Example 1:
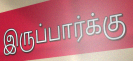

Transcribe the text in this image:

இருப்பார்க்கு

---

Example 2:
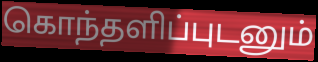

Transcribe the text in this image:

கொந்தளிப்புடனும்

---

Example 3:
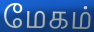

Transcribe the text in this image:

மேகம்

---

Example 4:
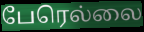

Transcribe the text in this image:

பேரெல்லை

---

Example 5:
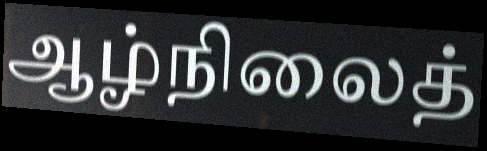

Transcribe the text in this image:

ஆழ்நிலைத்